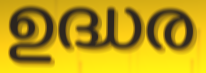
ഉദ്ധര